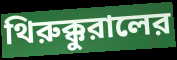
থিরুক্কুরালের